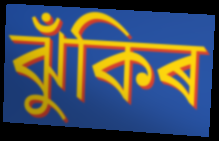
ঝুঁকিৰ